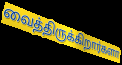
வைத்திருக்கிறார்களா